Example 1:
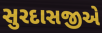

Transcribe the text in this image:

સુરદાસજીએ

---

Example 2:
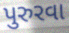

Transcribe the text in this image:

પુરુરવા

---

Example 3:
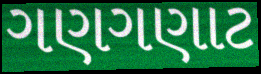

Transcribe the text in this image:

ગણગણાટ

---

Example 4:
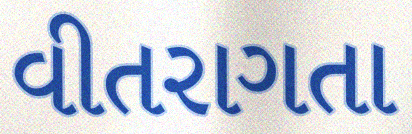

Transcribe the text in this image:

વીતરાગતા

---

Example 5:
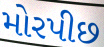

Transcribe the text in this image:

મોરપીછ